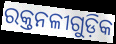
ରକ୍ତନଳୀଗୁଡ଼ିକ